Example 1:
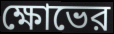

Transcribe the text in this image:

ক্ষোভের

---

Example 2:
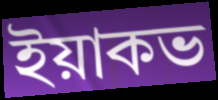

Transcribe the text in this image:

ইয়াকভ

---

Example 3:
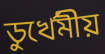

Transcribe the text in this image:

ডুর্খেমীয়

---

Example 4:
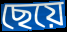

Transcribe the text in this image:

ছেয়ে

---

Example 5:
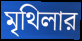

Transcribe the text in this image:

মৃথিলার